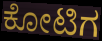
ಕೋಟಿಗ